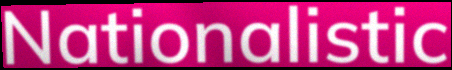
Nationalistic